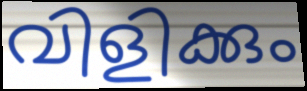
വിളിക്കും